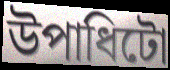
উপাধিটো